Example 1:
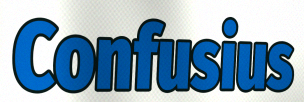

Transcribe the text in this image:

Confusius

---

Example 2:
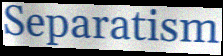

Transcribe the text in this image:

Separatism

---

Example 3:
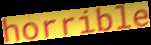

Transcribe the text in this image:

horrible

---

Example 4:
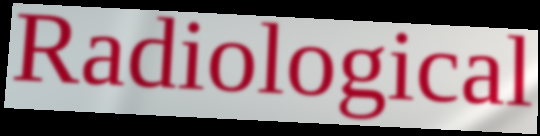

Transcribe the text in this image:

Radiological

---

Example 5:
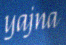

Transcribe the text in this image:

yajna